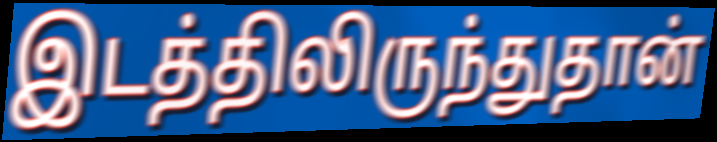
இடத்திலிருந்துதான்